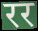
रर